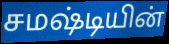
சமஷ்டியின்